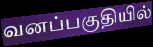
வனப்பகுதியில்